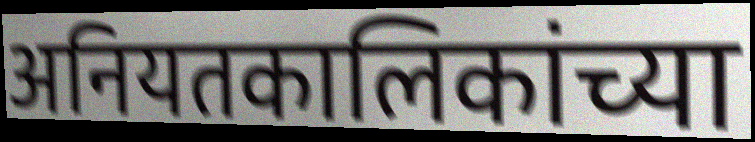
अनियतकालिकांच्या